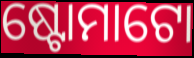
ଷ୍ଟୋମାଟୋ